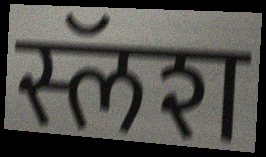
स्लॅश